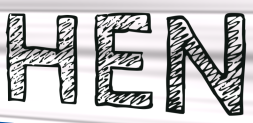
HEN